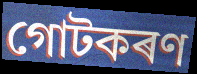
গোটকৰণ